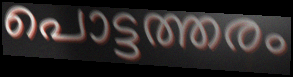
പൊട്ടത്തരം